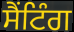
ਸੈਂਟਿੰਗ